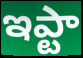
ఇప్టా